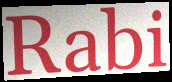
Rabi